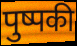
पुष्पकी